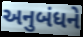
અનુબંધને